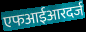
एफआईआरदर्ज